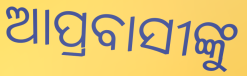
ଆପ୍ରବାସୀଙ୍କୁ